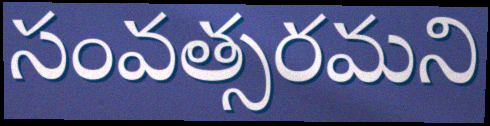
సంవత్సరమని